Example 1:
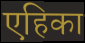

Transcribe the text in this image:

एहिका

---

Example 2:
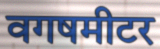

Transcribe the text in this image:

वगषमीटर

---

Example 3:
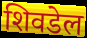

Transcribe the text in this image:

शिवडेल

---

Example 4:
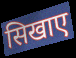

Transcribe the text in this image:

सिखाए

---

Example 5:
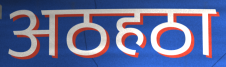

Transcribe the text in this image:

अठहठा